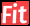
Fit